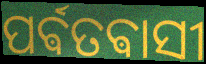
ପର୍ଵତଵାସୀ